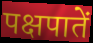
पक्षपातें